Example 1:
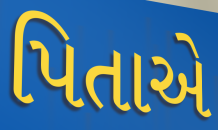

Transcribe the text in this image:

પિતાએ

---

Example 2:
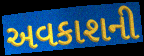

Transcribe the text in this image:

અવકાશની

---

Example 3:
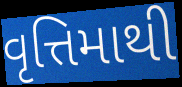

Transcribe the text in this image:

વૃત્તિમાથી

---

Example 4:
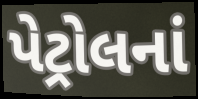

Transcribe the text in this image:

પેટ્રોલનાં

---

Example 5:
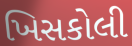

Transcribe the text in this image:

ખિસકોલી